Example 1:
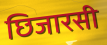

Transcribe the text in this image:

छिजारसी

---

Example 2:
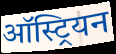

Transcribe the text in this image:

ऑस्ट्रियन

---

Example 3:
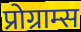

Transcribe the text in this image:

प्रोग्राम्‍स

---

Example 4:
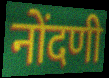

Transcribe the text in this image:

नोंदणी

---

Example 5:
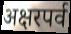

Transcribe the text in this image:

अक्षरपर्व